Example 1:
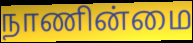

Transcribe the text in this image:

நாணின்மை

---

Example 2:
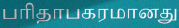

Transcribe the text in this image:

பரிதாபகரமானது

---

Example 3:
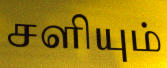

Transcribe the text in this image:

சளியும்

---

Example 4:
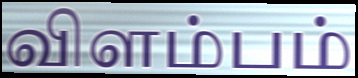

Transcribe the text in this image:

விளம்பம்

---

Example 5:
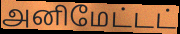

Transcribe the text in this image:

அனிமேட்டட்